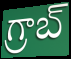
గ్రాబ్